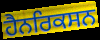
ਹੈਨਰਿਕਸਨ